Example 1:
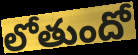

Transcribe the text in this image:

లోతుందో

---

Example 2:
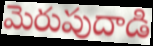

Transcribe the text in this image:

మెరుపుదాడి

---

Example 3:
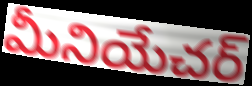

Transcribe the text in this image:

మీనియేచర్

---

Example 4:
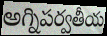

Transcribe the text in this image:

అగ్నిపర్వతీయ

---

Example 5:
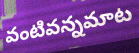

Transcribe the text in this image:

వంటివన్నమాట